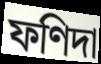
ফণিদা